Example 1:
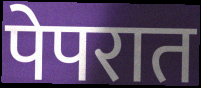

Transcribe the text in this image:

पेपरात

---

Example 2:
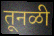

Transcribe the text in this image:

तूनळी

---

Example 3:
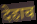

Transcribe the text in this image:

देहाच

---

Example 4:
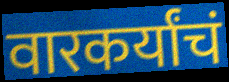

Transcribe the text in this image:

वारकर्यांचं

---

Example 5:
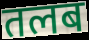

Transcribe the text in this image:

तलब